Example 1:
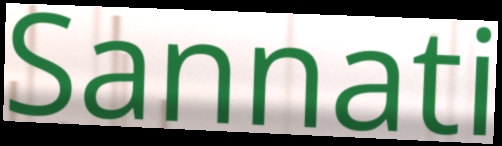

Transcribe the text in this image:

Sannati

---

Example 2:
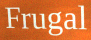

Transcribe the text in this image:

Frugal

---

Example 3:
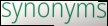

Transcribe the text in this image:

synonyms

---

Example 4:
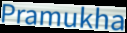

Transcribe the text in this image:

Pramukha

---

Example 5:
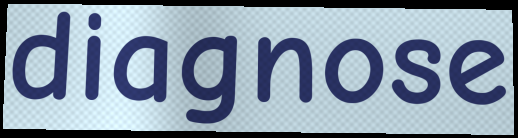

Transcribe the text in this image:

diagnose